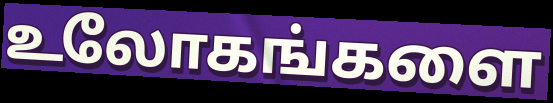
உலோகங்களை